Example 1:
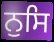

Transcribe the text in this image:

ਨੁਸਿ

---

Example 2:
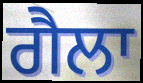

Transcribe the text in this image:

ਗੈਲਾ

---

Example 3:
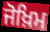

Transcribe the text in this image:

ਜੋਖ਼ਿਮ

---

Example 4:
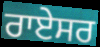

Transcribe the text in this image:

ਰਾਏਸਰ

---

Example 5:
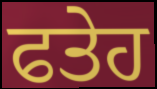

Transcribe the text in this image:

ਫਤੇਹ